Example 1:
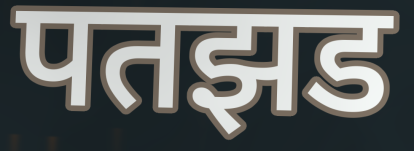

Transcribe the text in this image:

पतझड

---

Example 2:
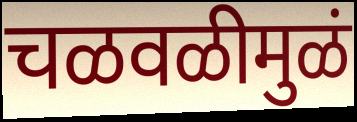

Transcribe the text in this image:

चळवळीमुळं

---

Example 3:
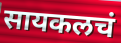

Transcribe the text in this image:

सायकलचं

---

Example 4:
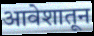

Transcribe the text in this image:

आवेशातून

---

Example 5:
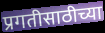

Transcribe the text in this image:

प्रगतीसाठीच्या